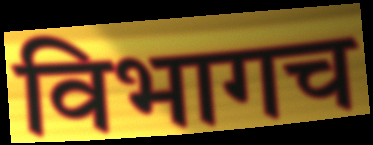
विभागच